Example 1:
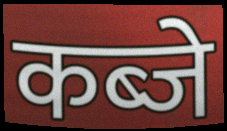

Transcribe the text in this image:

कब्‍जे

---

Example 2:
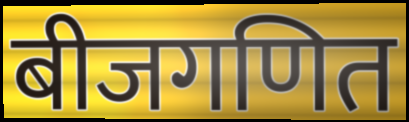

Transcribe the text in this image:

बीजगणित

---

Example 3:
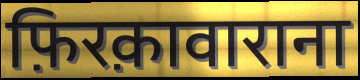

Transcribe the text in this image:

फ़िरक़ावाराना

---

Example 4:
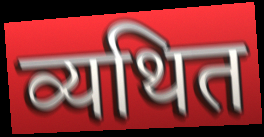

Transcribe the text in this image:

व्यथित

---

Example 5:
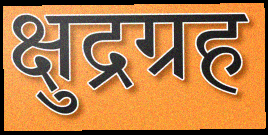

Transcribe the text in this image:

क्षुद्रग्रह